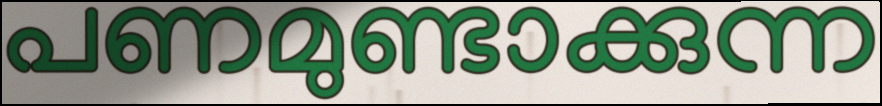
പണമുണ്ടാക്കുന്ന